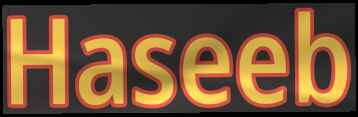
Haseeb